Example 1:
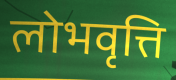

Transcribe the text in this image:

लोभवृत्ति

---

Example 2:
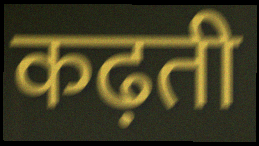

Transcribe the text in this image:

कढ़ती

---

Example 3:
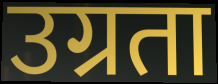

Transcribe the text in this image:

उग्रता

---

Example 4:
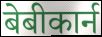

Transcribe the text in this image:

बेबीकार्न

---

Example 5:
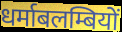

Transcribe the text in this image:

धर्माबलम्बियों